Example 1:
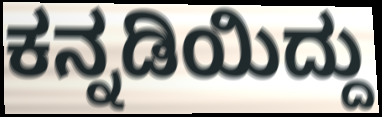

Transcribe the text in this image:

ಕನ್ನಡಿಯಿದ್ದು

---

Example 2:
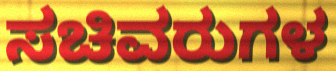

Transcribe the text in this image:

ಸಚಿವರುಗಳ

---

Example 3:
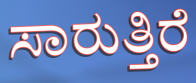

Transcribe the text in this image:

ಸಾರುತ್ತಿರೆ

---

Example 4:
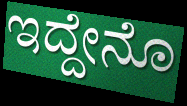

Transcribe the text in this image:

ಇದ್ದೇನೊ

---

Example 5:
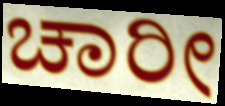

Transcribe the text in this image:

ಚಾರೀ